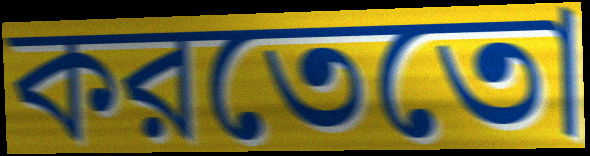
করতেতো